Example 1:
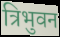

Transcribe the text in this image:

त्रिभुवन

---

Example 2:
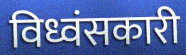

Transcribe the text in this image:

विध्वंसकारी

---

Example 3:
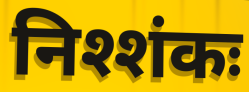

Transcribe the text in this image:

निश्शंकः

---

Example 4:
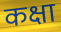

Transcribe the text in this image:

कक्षा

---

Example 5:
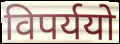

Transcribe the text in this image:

विपर्ययो